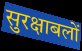
सुरक्षाबलों